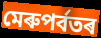
মেৰুপৰ্বতৰ